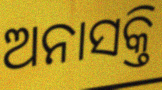
ଅନାସକ୍ତି